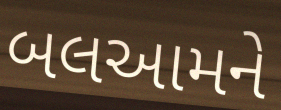
બલઆમને